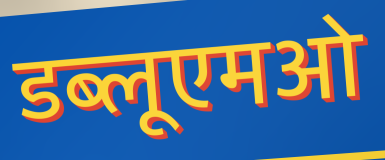
डब्लूएमओ